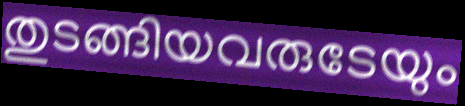
തുടങ്ങിയവരുടേയും